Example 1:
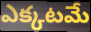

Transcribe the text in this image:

ఎక్కటమే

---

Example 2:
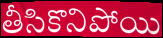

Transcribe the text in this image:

తీసికొనిపోయి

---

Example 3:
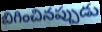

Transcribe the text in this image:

బిగించినప్పుడు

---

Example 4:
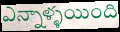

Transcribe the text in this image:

ఎన్నాళ్ళయింది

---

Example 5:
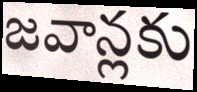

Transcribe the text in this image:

జవాన్లకు